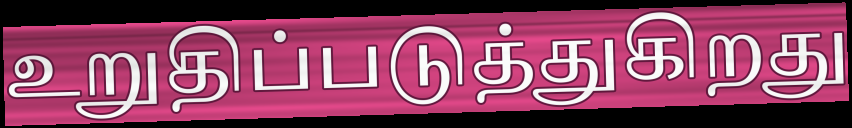
உறுதிப்படுத்துகிறது